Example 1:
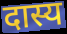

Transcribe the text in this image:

दास्य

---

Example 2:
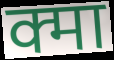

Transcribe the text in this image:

क्मा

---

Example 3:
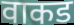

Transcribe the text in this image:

वाकड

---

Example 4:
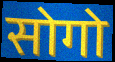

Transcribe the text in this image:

सोगो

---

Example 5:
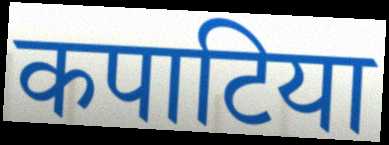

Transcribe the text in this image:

कपाटिया